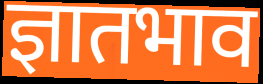
ज्ञातभाव